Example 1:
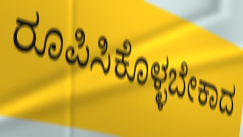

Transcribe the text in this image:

ರೂಪಿಸಿಕೊಳ್ಳಬೇಕಾದ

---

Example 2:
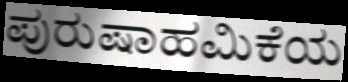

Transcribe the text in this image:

ಪುರುಷಾಹಮಿಕೆಯ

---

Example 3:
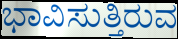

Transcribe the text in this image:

ಭಾವಿಸುತ್ತಿರುವ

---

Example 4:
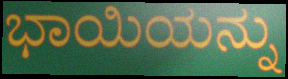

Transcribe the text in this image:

ಭಾಯಿಯನ್ನು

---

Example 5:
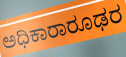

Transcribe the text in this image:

ಅಧಿಕಾರಾರೂಢರ